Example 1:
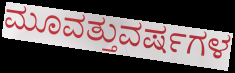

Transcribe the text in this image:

ಮೂವತ್ತುವರ್ಷಗಳ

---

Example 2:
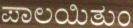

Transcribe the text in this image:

ಪಾಲಯಿತುಂ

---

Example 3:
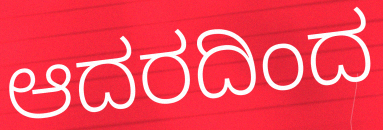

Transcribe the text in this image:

ಆದರದಿಂದ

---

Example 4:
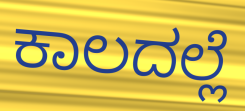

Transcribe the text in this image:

ಕಾಲದಲ್ಲೆ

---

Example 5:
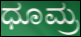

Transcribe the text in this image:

ಧೂಮ್ರ